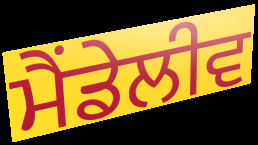
ਮੈਂਡੇਲੀਵ